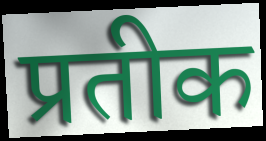
प्रतीक